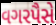
વગરપૈસે